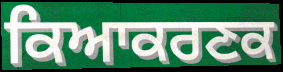
ਕਿਆਕਰਣਕ